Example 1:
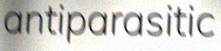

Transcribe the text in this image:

antiparasitic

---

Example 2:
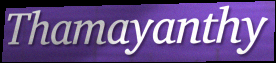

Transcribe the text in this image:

Thamayanthy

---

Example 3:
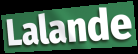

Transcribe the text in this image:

Lalande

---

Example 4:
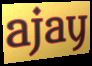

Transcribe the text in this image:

ajay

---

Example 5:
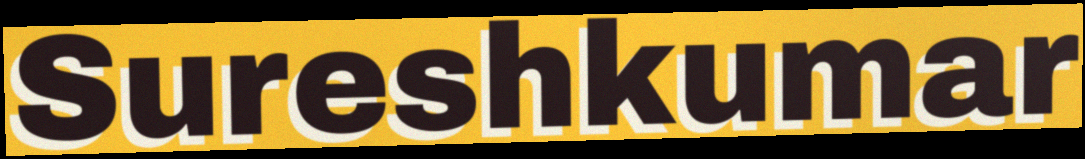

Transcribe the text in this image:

Sureshkumar